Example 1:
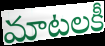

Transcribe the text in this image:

మాటలకీ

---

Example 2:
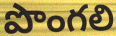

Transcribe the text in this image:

పొంగలి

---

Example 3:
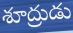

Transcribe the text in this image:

శూద్రుడు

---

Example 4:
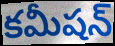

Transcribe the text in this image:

కమీషన్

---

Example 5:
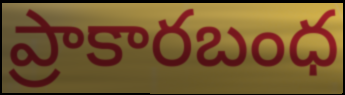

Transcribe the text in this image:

ప్రాకారబంధ